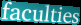
faculties